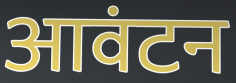
आवंटन